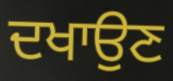
ਦਖਾਉਣ